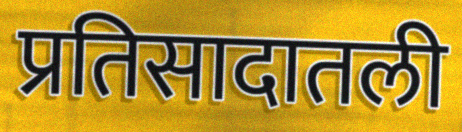
प्रतिसादातली